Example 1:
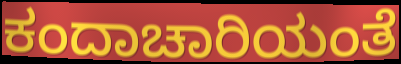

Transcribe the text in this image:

ಕಂದಾಚಾರಿಯಂತೆ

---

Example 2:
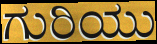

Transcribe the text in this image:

ಗುರಿಯು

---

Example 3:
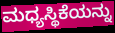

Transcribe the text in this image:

ಮಧ್ಯಸ್ಥಿಕೆಯನ್ನು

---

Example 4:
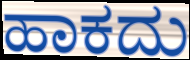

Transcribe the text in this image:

ಹಾಕದು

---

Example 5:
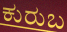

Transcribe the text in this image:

ಕುರುಬ